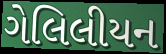
ગેલિલીયન